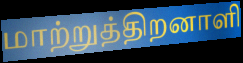
மாற்றுத்திறனாளி